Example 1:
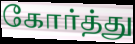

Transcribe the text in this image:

கோர்த்து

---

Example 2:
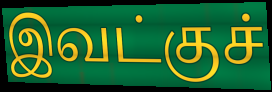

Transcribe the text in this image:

இவட்குச்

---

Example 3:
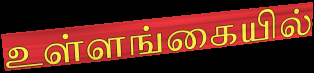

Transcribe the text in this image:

உள்ளங்கையில்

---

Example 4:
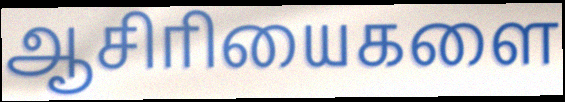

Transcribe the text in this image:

ஆசிரியைகளை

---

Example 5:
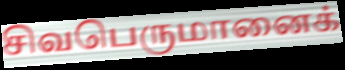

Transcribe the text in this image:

சிவபெருமானைக்